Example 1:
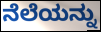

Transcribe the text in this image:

ನೆಲೆಯನ್ನು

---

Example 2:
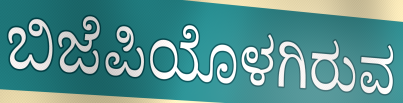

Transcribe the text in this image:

ಬಿಜೆಪಿಯೊಳಗಿರುವ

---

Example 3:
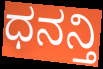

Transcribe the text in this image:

ಧನನ್ತಿ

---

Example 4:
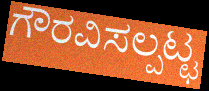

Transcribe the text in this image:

ಗೌರವಿಸಲ್ಪಟ್ಟ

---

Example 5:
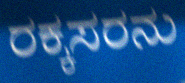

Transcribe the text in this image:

ರಕ್ಕಸರನು